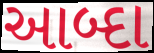
આબ્દા